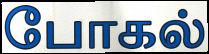
போகல்